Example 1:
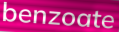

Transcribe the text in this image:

benzoate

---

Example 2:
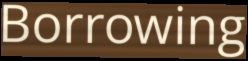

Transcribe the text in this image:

Borrowing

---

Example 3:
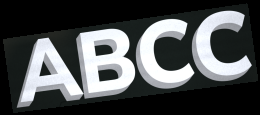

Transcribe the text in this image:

ABCC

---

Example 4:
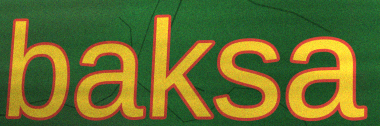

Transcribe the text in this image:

baksa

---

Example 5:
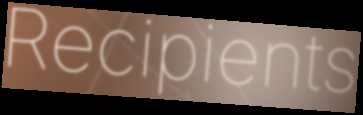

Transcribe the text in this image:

Recipients